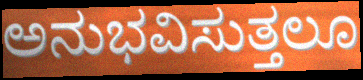
ಅನುಭವಿಸುತ್ತಲೂ